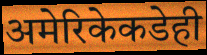
अमेरिकेकडेही